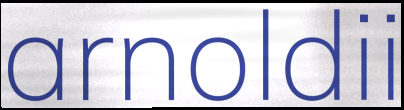
arnoldii